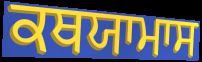
ਕਥਯਾਮਾਸ